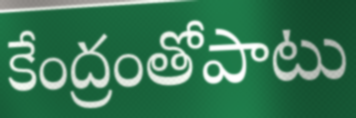
కేంద్రంతోపాటు